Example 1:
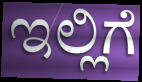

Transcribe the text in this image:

ಇಲ್ಲಿಗೆ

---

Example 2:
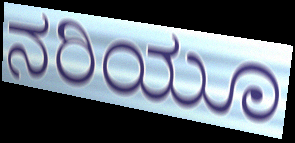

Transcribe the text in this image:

ನರಿಯೂ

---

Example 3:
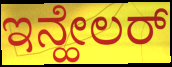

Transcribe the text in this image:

ಇನ್ಹೇಲರ್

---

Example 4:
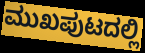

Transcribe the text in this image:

ಮುಖಪುಟದಲ್ಲಿ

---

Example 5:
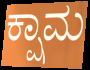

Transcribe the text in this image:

ಕ್ಷಾಮ